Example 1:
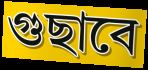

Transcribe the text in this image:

গুছাবে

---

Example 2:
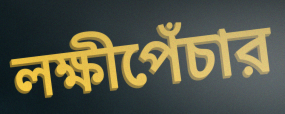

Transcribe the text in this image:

লক্ষীপেঁচার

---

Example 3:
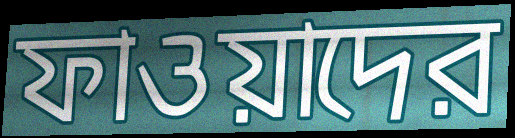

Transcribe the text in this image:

ফাওয়াদের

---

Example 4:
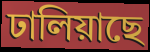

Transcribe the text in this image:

ঢালিয়াছে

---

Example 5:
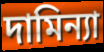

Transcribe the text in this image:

দামিন্যা